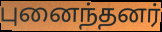
புனைந்தனர்